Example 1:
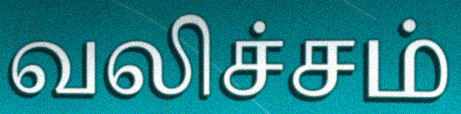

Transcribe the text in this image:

வலிச்சம்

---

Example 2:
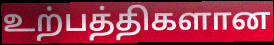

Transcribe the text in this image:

உற்பத்திகளான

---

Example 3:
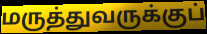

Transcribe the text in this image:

மருத்துவருக்குப்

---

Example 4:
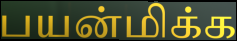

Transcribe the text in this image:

பயன்மிக்க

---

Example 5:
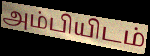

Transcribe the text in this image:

அம்பியிடம்